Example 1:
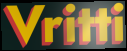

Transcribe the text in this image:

Vritti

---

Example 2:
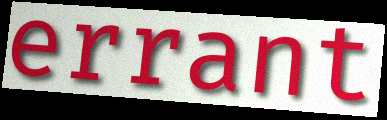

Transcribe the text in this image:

errant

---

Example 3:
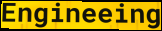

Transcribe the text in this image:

Engineeing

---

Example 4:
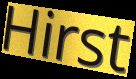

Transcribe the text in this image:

Hirst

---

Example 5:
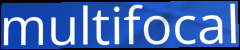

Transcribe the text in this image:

multifocal